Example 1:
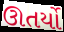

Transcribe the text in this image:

ઊતર્યો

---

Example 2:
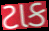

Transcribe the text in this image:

ટાક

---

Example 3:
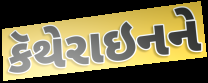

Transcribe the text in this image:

કૅથેરાઇનને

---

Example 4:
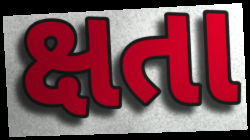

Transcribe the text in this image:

ક્ષતા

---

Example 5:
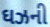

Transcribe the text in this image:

ઘઝની